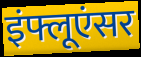
इंफ्लूएंसर